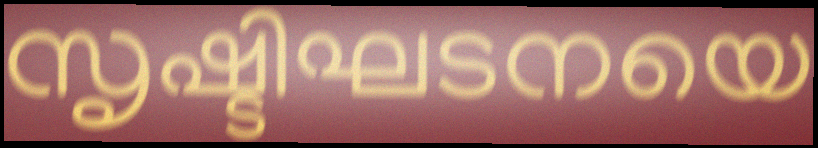
സൃഷ്ടിഘടനയെ